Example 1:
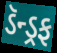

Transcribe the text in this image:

ડૅન્ડ્રફ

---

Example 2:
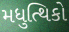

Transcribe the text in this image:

મધુત્થિકો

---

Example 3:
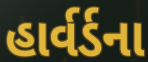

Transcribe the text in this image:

હાર્વર્ડના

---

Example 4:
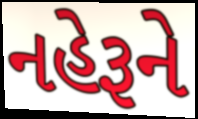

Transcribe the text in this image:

નહેરૂને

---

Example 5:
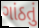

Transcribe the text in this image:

ગાંઠતું